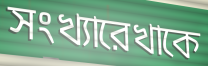
সংখ্যারেখাকে